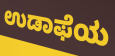
ಉಡಾಫೆಯ